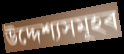
উদ্দেশ্যসমূহৰ